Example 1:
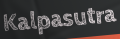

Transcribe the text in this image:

Kalpasutra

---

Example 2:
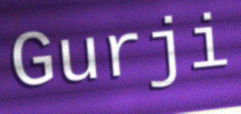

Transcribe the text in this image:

Gurji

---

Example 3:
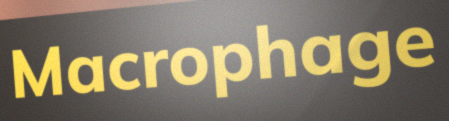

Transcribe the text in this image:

Macrophage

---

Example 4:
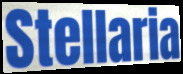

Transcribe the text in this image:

Stellaria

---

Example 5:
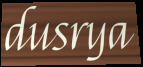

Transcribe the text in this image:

dusrya